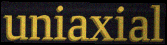
uniaxial